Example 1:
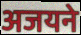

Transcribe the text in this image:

अजयने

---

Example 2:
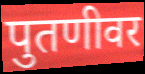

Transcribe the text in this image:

पुतणीवर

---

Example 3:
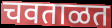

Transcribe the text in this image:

चवताळत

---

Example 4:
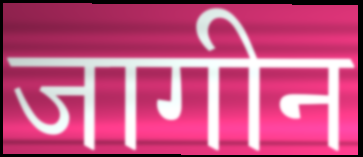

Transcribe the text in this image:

जागीन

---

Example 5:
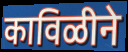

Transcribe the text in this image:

काविळीने